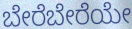
ಬೇರೆಬೇರೆಯೇ